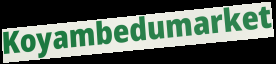
Koyambedumarket